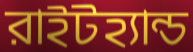
রাইটহ্যান্ড